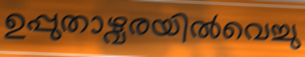
ഉപ്പുതാഴ്വരയിൽവെച്ചു